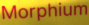
Morphium